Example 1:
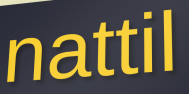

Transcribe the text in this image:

nattil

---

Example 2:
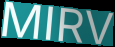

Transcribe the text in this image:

MIRV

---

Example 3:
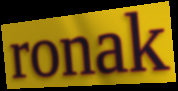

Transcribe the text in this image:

ronak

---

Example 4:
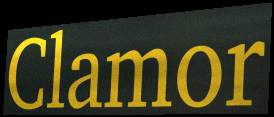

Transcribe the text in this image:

Clamor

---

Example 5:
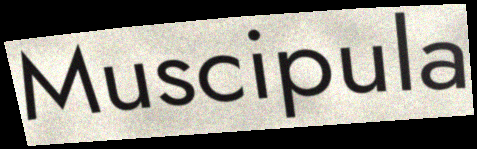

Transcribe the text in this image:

Muscipula